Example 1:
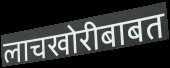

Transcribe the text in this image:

लाचखोरीबाबत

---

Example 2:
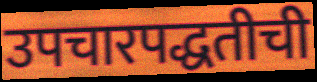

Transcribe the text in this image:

उपचारपद्धतीची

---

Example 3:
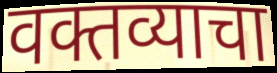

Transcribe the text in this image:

वक्तव्याचा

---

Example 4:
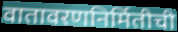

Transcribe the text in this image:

वातावरणनिर्मितीची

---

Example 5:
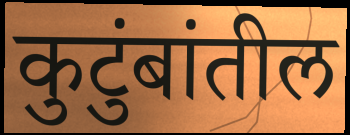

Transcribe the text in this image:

कुटुंबांतील